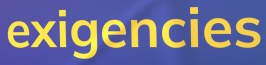
exigencies